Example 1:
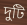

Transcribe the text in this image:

দুটি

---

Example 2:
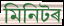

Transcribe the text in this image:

মিনিটৰ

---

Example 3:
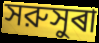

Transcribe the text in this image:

সৰুসুৰা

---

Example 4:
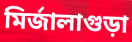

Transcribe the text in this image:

মিৰ্জালাগুড়া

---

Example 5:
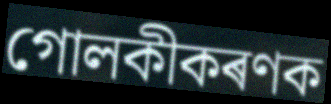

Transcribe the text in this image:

গোলকীকৰণক